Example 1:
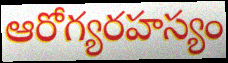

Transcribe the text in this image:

ఆరోగ్యరహస్యం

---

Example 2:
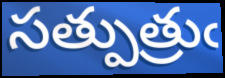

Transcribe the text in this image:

సత్పుత్రుఁ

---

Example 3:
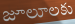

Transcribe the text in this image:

జూలూలకు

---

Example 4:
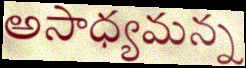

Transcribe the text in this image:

అసాధ్యమన్న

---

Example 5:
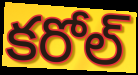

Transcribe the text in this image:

కరోల్